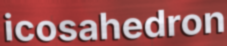
icosahedron